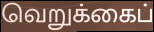
வெறுக்கைப்